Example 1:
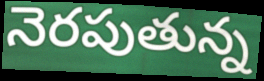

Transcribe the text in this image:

నెరపుతున్న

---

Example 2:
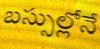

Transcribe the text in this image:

బస్సుల్లోనే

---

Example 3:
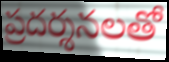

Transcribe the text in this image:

ప్రదర్శనలతో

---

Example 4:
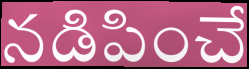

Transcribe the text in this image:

నడిపించే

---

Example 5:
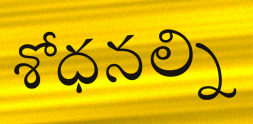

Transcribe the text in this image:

శోధనల్ని